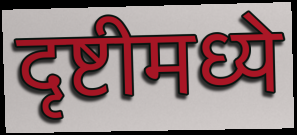
दृष्टीमध्ये